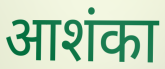
आशंका